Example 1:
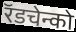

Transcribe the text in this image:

रॅडचेन्को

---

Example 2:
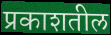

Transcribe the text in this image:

प्रकाशतील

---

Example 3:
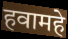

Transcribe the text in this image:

हवामहे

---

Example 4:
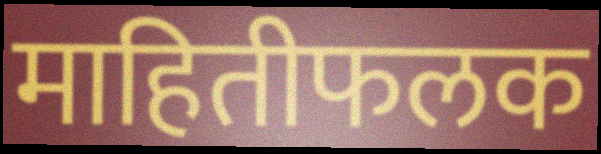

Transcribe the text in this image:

माहितीफलक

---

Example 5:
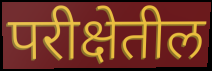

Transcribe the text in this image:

परीक्षेतील